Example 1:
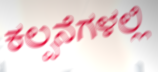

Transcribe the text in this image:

ಕಲ್ಪನೆಗಳಲ್ಲಿ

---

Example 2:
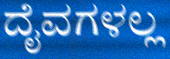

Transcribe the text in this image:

ದೈವಗಳಲ್ಲ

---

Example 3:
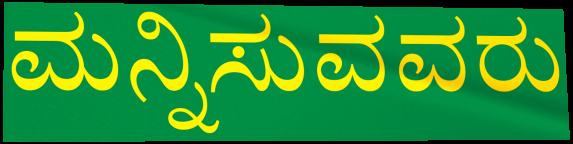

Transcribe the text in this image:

ಮನ್ನಿಸುವವರು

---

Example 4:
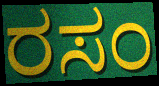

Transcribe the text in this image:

ರಸಂ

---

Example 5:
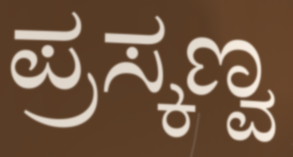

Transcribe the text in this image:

ಪ್ರಸ್ಕಣ್ವ